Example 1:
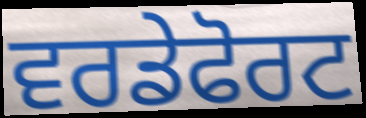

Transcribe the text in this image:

ਵਰਡੇਫੋਰਟ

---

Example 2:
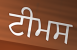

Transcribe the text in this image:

ਟੀਮਸ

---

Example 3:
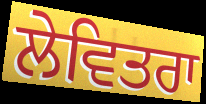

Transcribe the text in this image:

ਲੇਵਿਤਰਾ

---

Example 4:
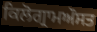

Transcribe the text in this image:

ਕਿਲੋਗ੍ਰਾਮਔਸਤ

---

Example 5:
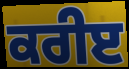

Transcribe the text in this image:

ਕਰੀੲ